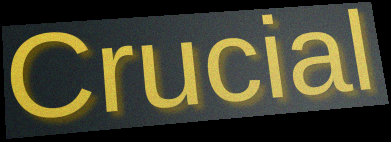
Crucial